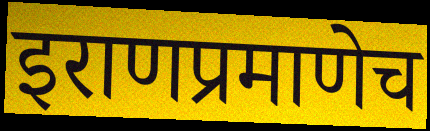
इराणप्रमाणेच